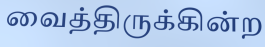
வைத்திருக்கின்ற